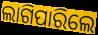
ଲାଗିପାରିଲେ